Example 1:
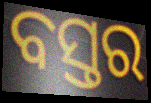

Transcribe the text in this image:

ବସ୍ତର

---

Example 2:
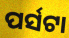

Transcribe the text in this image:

ପର୍ସଟା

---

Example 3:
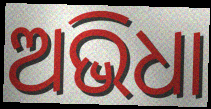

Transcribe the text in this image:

ଅଭିଧା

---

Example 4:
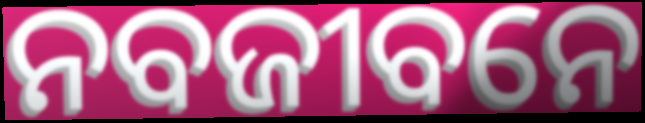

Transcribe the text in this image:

ନବଜୀବନେ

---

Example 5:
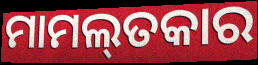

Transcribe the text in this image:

ମାମଲ୍‌ତକାର